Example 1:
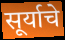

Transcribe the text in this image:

सूर्याचे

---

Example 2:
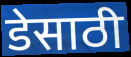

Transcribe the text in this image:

डेसाठी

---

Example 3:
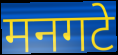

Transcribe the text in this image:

मनगटे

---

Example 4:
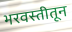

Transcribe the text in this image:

भरवस्तीतून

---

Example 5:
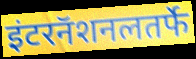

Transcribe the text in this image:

इंटरनॅशनलतर्फे